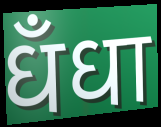
धँधा